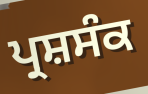
ਪ੍ਰਸ਼ਸੰਕ